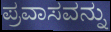
ಪ್ರವಾಸವನ್ನು